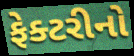
ફેક્ટરીનો